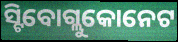
ସ୍ଟିବୋଗ୍ଲୁକୋନେଟ